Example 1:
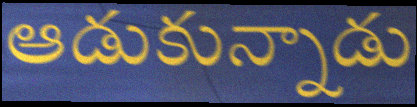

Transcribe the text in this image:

ఆడుకున్నాడు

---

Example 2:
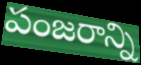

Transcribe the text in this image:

పంజరాన్ని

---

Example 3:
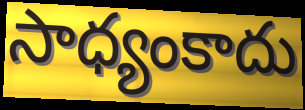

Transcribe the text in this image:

సాధ్యంకాదు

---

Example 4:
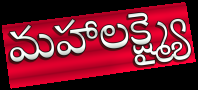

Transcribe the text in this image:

మహాలక్ష్మ్యై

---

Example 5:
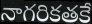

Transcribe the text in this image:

నాగరికతకే